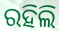
ରହିଲି